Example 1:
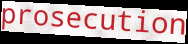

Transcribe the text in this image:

prosecution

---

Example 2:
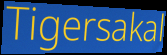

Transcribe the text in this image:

Tigersakal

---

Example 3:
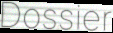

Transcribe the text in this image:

Dossier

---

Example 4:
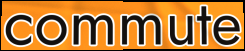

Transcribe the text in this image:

commute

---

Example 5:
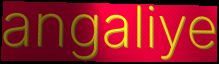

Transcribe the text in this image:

angaliye